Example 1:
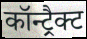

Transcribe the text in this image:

कॉन्ट्रैक्ट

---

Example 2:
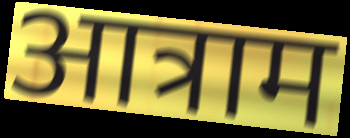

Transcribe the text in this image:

आत्राम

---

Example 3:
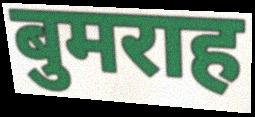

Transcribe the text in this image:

बुमराह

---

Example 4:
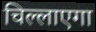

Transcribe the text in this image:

चिल्लाएगा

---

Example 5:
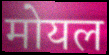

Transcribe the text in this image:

मोयल